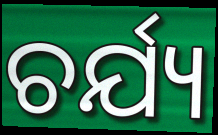
ଚର୍ଯ୍ୟ